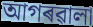
আগৰৱালা